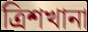
ত্রিশখানা